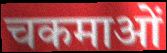
चकमाओं